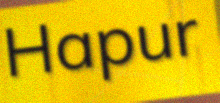
Hapur